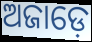
ଅଜାଡ଼େ